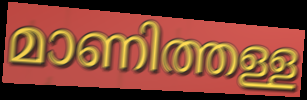
മാണിത്തള്ള